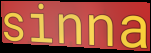
sinna